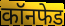
कॉनफेड